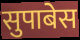
सुपाबेस